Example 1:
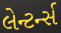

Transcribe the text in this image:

લેન્ટર્ન્સ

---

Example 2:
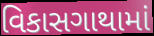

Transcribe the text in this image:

વિકાસગાથામાં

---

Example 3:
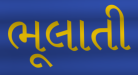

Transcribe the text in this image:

ભૂલાતી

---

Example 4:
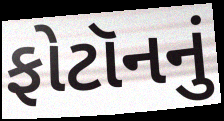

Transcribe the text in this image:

ફોટૉનનું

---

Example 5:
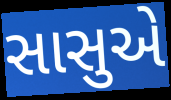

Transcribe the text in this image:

સાસુએ